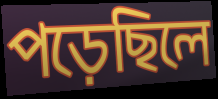
পড়েছিলে